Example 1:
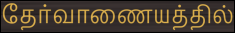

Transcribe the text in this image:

தேர்வாணையத்தில்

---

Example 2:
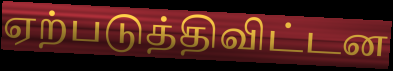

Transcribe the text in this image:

ஏற்படுத்திவிட்டன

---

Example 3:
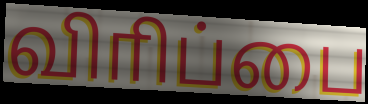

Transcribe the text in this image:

விரிப்பை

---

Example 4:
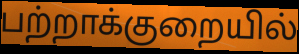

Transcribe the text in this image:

பற்றாக்குறையில்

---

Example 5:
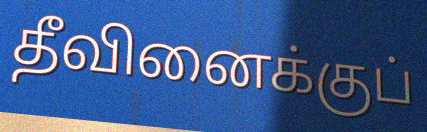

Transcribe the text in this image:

தீவினைக்குப்